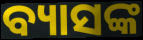
ବ୍ୟାସଙ୍କ